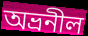
অভ্রনীল